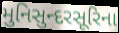
મુનિસુન્દરસૂરિના